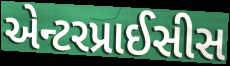
એન્ટરપ્રાઈસીસ